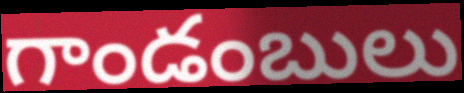
గాండంబులు